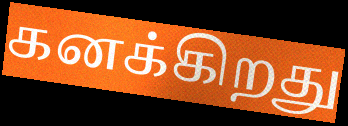
கனக்கிறது